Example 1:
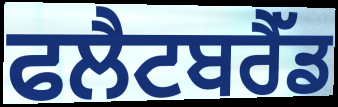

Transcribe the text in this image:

ਫਲੈਟਬਰੈੱਡ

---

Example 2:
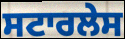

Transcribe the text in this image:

ਸਟਾਰਲੇਸ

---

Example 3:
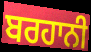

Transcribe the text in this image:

ਬਰਹਾਨੀ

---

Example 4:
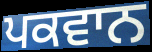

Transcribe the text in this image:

ਪਕਵਾਨ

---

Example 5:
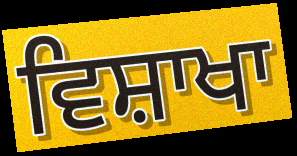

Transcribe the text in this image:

ਵਿਸ਼ਾਖਾ